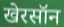
खेरसॉन